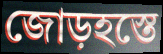
জোড়হস্তে